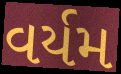
વર્યમ